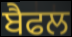
ਬੈਫਲ